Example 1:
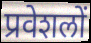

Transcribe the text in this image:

प्रवेशलों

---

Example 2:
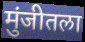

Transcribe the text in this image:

मुंजीतला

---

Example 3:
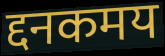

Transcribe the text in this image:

द्दनकमय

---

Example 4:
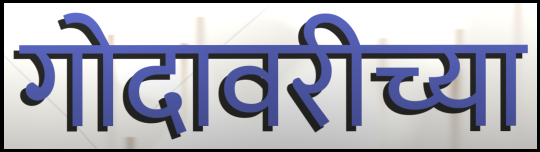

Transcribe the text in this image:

गोदावरीच्या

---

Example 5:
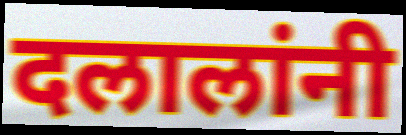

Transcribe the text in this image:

दलालांनी